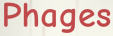
Phages